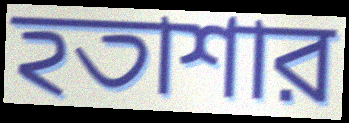
হতাশার